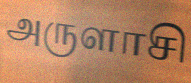
அருளாசி